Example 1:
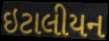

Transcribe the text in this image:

ઇટાલીયન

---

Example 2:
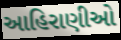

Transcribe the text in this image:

આહિરાણીઓ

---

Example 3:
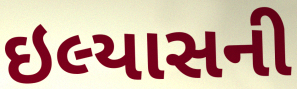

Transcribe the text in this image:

ઇલ્યાસની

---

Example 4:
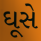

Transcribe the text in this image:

ઘૂસે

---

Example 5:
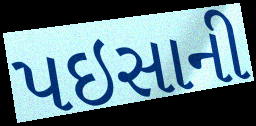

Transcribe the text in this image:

પઇસાની